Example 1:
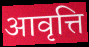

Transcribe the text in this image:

आवृत्ति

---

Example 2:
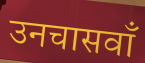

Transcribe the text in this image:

उनचासवाँ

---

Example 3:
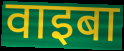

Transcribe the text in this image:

वाइबा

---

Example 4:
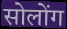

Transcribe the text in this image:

सोलोंग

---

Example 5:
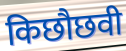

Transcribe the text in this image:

किछौछवी